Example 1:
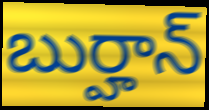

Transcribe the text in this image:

బుర్హాన్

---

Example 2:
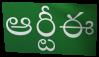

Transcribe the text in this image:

ఆర్టీఈ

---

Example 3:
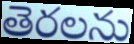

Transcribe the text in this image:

తెరలను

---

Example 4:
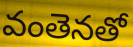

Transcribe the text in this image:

వంతెనతో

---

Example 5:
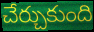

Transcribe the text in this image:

చేర్చుకుంది